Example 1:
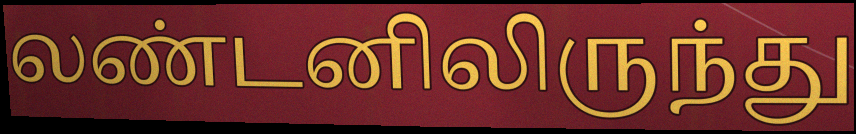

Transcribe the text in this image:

லண்டனிலிருந்து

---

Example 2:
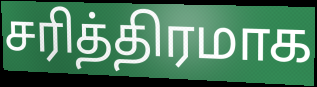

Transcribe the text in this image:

சரித்திரமாக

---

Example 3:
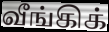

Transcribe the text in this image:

வீங்கிக்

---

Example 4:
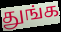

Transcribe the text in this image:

துங்க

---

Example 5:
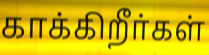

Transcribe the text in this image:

காக்கிறீர்கள்